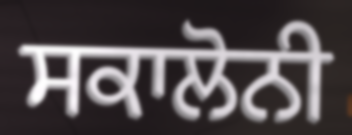
ਸਕਾਲੋਨੀ